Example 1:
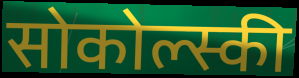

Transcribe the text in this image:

सोकोल्स्की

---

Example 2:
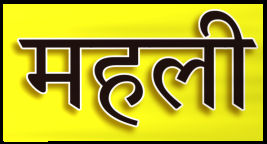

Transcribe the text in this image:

महली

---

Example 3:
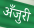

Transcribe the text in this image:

अँजुरी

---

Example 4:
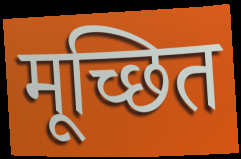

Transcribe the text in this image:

मूच्छित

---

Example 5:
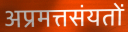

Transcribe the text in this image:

अप्रमत्तसंयतों